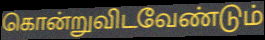
கொன்றுவிடவேண்டும்